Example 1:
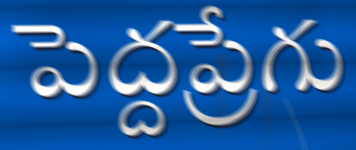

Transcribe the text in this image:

పెద్దప్రేగు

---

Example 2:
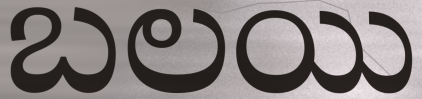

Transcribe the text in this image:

బలయి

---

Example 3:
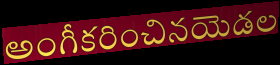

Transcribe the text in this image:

అంగీకరించినయెడల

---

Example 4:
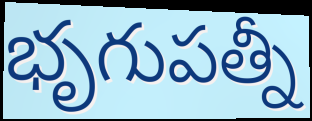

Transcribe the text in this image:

భృగుపత్నీ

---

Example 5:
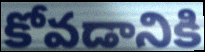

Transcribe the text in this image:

కోవడానికి